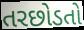
તરછોડતો